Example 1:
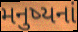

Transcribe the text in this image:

મનુષ્યનાં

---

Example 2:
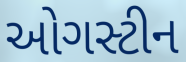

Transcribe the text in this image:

ઓગસ્ટીન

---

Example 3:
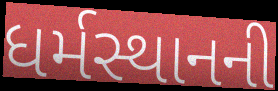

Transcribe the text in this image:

ધર્મસ્થાનની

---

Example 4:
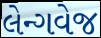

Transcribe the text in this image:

લેન્ગવેજ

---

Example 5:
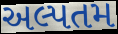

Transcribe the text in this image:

અલ્પતમ